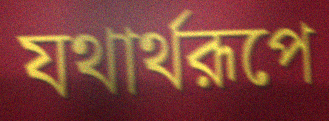
যথার্থরূপে